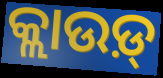
କ୍ଲାଉଡ଼୍